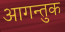
आगन्तुक